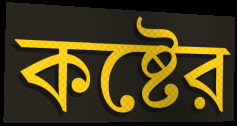
কষ্টের